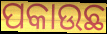
ପକାଉଛ